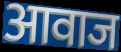
आवाज